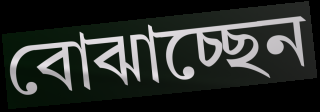
বোঝাচ্ছেন